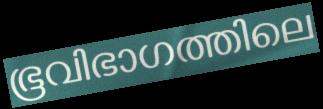
ഭൂവിഭാഗത്തിലെ